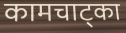
कामचाट्का